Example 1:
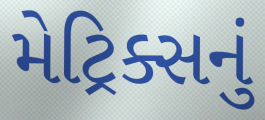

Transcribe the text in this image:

મેટ્રિક્સનું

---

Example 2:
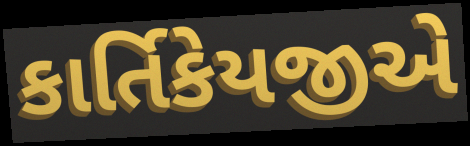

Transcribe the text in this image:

કાર્તિકેયજીએ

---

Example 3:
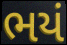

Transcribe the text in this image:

ભયં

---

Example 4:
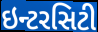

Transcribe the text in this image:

ઇન્ટરસિટી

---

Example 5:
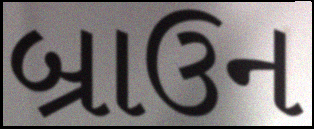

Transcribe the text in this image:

બ્રાઉન